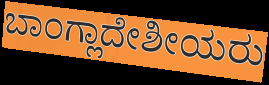
ಬಾಂಗ್ಲಾದೇಶೀಯರು